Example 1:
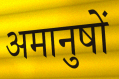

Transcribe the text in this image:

अमानुषों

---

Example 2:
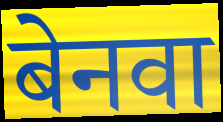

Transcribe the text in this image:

बेनवा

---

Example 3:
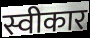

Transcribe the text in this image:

स्‍वीकार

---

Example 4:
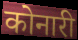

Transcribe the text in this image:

कोनारी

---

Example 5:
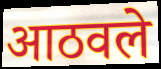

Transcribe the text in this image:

आठवले